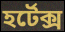
হর্টেক্স